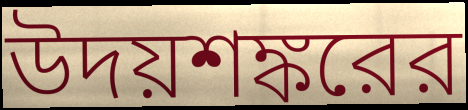
উদয়শঙ্করের